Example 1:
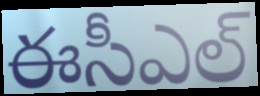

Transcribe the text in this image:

ఈసీఎల్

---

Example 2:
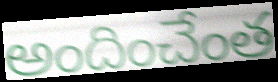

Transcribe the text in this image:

అందించేంత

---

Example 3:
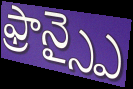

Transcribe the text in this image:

ఫ్రాన్స్పై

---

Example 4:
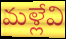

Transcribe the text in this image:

మళ్లేవి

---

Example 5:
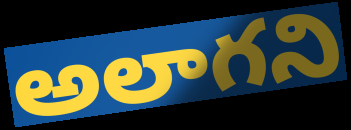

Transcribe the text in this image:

అలాగని